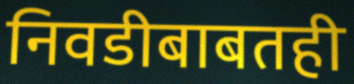
निवडीबाबतही